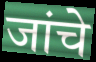
जांचे